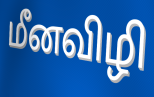
மீனவிழி